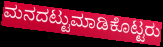
ಮನದಟ್ಟುಮಾಡಿಕೊಟ್ಟರು